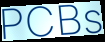
PCBs